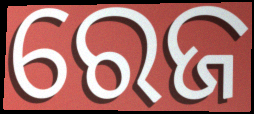
ରେଜ